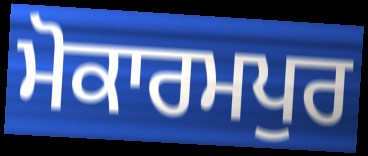
ਮੋਕਾਰਮਪੁਰ